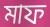
মাফ